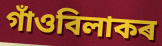
গাঁওবিলাকৰ